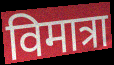
विमात्रा